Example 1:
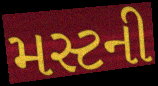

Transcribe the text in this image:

મસ્ટની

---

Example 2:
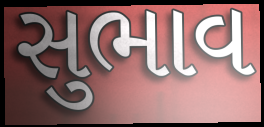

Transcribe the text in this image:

સુભાવ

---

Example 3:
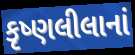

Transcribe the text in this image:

કૃષ્ણલીલાનાં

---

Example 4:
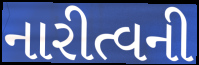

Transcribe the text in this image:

નારીત્વની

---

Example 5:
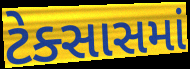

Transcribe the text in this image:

ટેક્સાસમાં